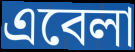
এবেলা